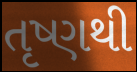
તૃષ્ણથી